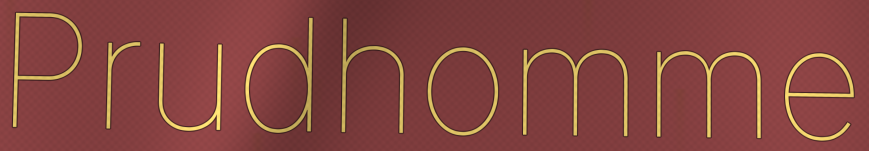
Prudhomme